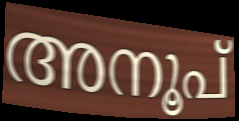
അനൂപ്